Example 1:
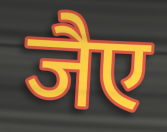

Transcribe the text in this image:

जैए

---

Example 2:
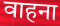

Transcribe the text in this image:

वाहना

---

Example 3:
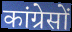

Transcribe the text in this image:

कांग्रेसों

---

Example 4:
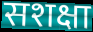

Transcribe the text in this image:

सशक्षा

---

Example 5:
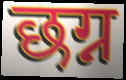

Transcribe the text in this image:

छग्न